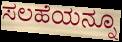
ಸಲಹೆಯನ್ನೂ